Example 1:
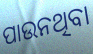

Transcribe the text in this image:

ପାଉନଥିବା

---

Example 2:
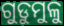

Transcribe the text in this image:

ଗୁଡୁମୁଳୁ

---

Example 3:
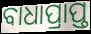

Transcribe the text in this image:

ବାଧାପ୍ରାପ୍ତ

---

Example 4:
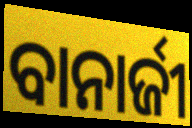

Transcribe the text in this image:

ବାନାର୍ଜୀ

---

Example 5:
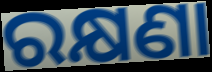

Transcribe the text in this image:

ରକ୍ଷଣା